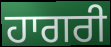
ਹਾਗਰੀ